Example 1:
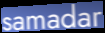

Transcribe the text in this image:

samadar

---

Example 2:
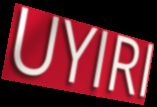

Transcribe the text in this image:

UYIRI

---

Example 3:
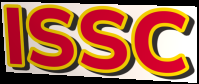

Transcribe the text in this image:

ISSC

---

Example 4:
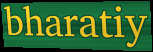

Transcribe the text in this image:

bharatiy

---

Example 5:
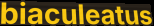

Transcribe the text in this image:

biaculeatus